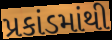
પ્રકાંડમાંથી